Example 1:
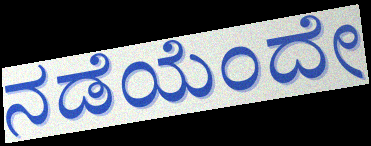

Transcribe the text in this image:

ನಡೆಯೆಂದೇ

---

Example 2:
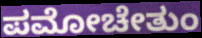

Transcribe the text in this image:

ಪಮೋಚೇತುಂ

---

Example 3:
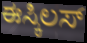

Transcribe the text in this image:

ಈಸ್ಕಿಲಸ್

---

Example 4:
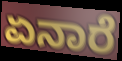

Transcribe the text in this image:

ಏನಾರೆ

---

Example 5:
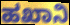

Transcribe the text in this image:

ಹಖಾನಿ